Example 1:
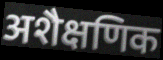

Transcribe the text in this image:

अशैक्षणिक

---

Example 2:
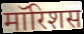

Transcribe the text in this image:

मॉरिशस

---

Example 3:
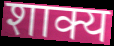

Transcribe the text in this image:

शाक्य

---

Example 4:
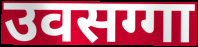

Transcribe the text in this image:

उवसग्गा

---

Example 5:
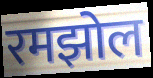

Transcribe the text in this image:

रमझोल